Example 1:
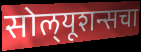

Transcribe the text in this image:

सोल्यूशन्सचा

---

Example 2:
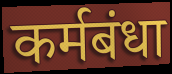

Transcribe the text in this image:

कर्मबंधा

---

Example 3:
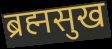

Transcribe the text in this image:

ब्रह्मसुख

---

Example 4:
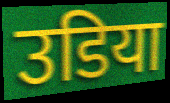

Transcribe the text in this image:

उडिया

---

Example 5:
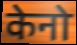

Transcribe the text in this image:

केनो